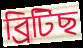
ব্ৰিটিছ